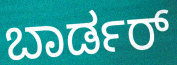
ಬಾರ್ಡರ್